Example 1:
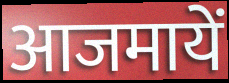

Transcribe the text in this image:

आजमायें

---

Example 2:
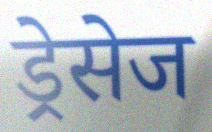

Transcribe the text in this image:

ड्रेसेज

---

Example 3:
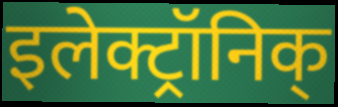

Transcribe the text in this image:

इलेक्ट्रॉनिक्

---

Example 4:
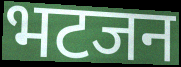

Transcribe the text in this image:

भटजन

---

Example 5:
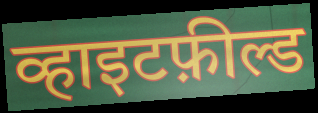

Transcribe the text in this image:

व्हाइटफ़ील्ड